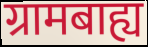
ग्रामबाह्य